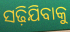
ସଢ଼ିଯିବାକୁ